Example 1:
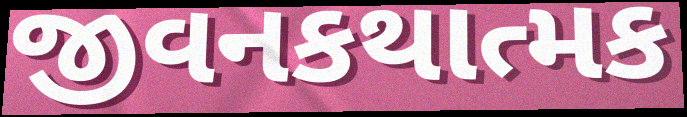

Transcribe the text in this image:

જીવનકથાત્મક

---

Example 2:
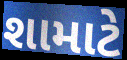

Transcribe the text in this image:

શામાટે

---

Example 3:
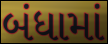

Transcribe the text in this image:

બંધામાં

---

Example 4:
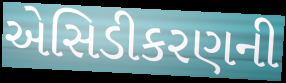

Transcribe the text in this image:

એસિડીકરણની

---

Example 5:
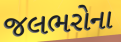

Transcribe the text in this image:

જલભરોના